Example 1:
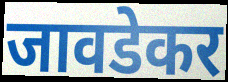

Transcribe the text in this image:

जावडेकर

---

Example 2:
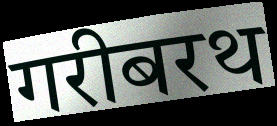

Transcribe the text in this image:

गरीबरथ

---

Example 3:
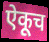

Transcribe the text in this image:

ऐकूच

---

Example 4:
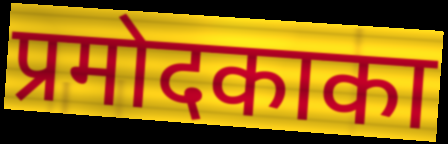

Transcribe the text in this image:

प्रमोदकाका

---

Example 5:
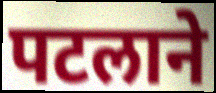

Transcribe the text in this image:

पटलाने